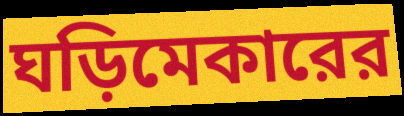
ঘড়িমেকারের